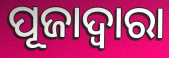
ପୂଜାଦ୍ୱାରା